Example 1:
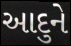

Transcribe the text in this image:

આદુને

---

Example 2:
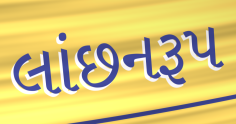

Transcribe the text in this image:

લાંછનરૂપ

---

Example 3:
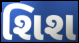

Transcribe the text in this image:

શિશ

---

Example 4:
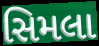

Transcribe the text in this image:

સિમલા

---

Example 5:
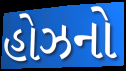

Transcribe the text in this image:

હોઝનો